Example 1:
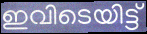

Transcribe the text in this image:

ഇവിടെയിട്ട്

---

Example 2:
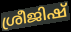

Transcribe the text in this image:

ശ്രീജിഷ്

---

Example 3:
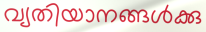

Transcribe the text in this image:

വ്യതിയാനങ്ങൾക്കു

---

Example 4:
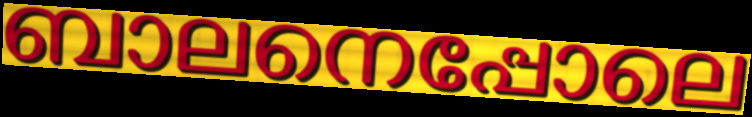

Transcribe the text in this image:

ബാലനെപ്പോലെ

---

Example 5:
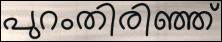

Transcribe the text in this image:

പുറംതിരിഞ്ഞ്